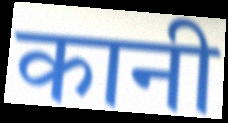
कानी